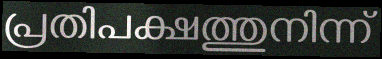
പ്രതിപക്ഷത്തുനിന്ന്